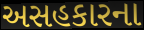
અસહકારના